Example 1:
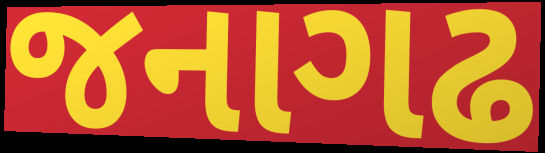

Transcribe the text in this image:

જનાગઢ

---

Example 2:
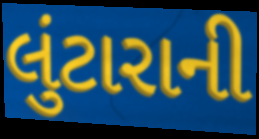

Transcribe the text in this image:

લુંટારાની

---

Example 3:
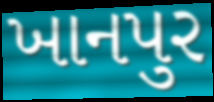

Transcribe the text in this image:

ખાનપુર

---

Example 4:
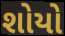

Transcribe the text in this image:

શોયો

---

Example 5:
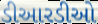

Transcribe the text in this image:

ડીઆરડીઓ